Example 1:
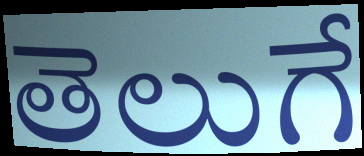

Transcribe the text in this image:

తెలుగే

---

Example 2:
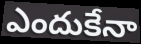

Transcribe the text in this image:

ఎందుకేనా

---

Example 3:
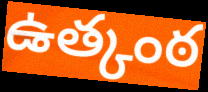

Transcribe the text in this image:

ఉత్కంఠ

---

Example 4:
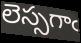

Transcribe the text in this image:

లెస్సగాఁ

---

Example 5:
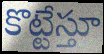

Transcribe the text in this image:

కొట్టేస్తూ